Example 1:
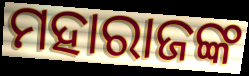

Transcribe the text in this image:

ମହାରାଜଙ୍କ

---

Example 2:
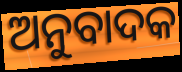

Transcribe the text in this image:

ଅନୁବାଦକ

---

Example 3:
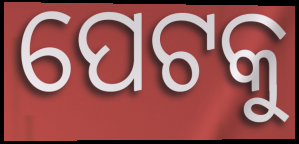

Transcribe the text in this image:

ପେଟକୁ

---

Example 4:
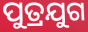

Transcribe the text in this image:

ପୁତ୍ରଯୁଗ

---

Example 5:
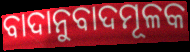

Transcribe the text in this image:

ବାଦାନୁବାଦମୂଳକ